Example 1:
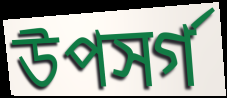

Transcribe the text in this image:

উপসৰ্গ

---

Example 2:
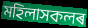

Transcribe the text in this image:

মহিলাসকলৰ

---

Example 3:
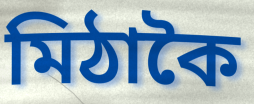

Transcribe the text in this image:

মিঠাকৈ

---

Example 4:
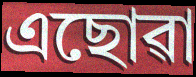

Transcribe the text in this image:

এছোৱা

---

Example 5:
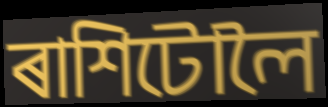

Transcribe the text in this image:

ৰাশিটোলৈ